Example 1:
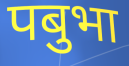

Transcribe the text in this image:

पबुभा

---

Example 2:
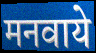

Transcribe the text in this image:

मनवाये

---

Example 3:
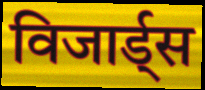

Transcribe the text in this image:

विजार्ड्स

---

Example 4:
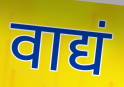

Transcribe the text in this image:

वाद्यं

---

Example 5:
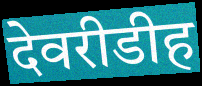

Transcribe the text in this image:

देवरीडीह